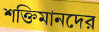
শক্তিমানদের